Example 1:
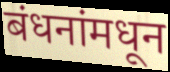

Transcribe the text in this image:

बंधनांमधून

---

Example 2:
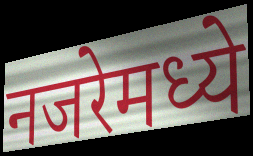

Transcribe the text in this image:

नजरेमध्ये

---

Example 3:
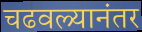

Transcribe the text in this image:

चढवल्यानंतर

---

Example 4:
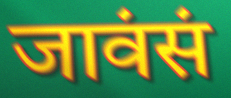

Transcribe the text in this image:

जावंसं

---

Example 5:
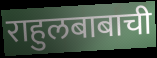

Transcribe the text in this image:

राहुलबाबाची